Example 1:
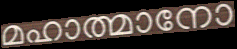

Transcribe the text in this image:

മഹാത്മാനോ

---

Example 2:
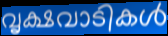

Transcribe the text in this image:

വൃക്ഷവാടികൾ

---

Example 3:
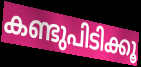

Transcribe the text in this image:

കണ്ടുപിടിക്കൂ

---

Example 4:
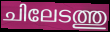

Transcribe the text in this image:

ചിലേടത്തു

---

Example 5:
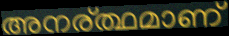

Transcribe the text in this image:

അനര്ത്ഥമാണ്